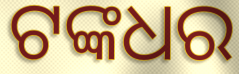
ଟଙ୍କଧର